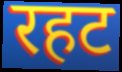
रहट